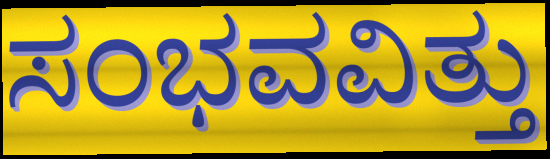
ಸಂಭವವಿತ್ತು